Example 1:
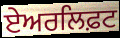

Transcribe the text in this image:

ਏਅਰਲਿਫ਼ਟ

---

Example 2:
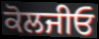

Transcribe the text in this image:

ਕੋਲਜੀਓ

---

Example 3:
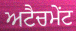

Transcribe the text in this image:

ਅਟੈਚਮੇਂਟ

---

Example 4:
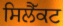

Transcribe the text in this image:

ਸਿਲੈੱਕਟ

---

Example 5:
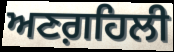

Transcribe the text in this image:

ਅਣਗ਼ਹਿਲੀ